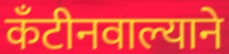
कँटीनवाल्याने